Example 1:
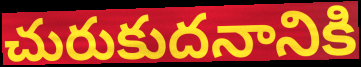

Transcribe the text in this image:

చురుకుదనానికి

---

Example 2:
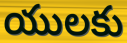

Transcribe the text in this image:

యులకు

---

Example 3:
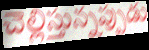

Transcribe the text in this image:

చెల్లిస్తున్నప్పుడు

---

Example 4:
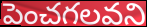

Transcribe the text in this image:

పెంచగలవని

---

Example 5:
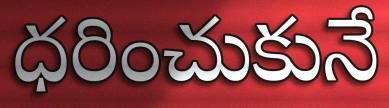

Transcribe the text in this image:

ధరించుకునే